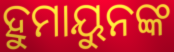
ହୁମାୟୁନଙ୍କ